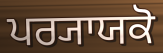
ਪਰ੍ਯਾਯਕੋ